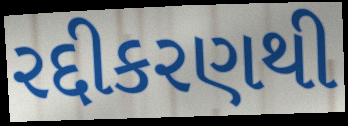
રદ્દીકરણથી